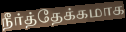
நீர்த்தேக்கமாக